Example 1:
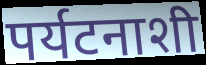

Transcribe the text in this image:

पर्यटनाशी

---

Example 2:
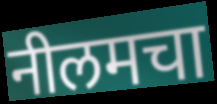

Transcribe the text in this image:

नीलमचा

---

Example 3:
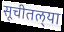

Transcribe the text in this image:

सूचीतल्या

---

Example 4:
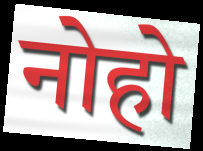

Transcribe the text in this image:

नोहो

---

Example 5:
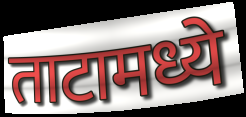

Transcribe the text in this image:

ताटामध्ये